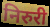
निरुरी